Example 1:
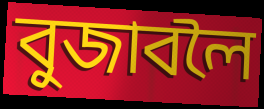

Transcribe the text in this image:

বুজাবলৈ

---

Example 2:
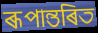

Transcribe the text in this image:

ৰূপান্তৰিত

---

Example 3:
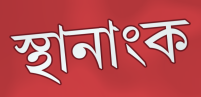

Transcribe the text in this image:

স্থানাংক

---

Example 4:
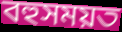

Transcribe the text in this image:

বহুসময়ত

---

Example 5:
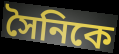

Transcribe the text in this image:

সৈনিকে